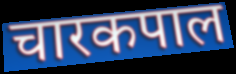
चारकपाल